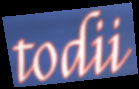
todii